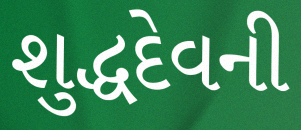
શુદ્ધદેવની